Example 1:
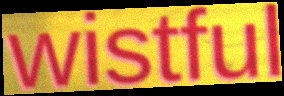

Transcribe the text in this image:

wistful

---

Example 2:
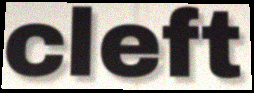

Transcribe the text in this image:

cleft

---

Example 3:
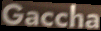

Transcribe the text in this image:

Gaccha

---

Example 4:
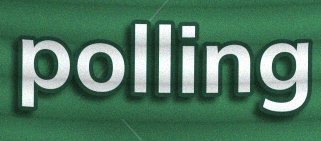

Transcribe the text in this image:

polling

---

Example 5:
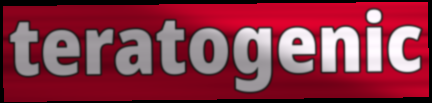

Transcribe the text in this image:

teratogenic